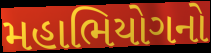
મહાભિયોગનો